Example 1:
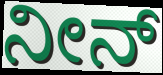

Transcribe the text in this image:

ನೀನ್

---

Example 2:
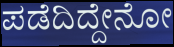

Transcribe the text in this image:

ಪಡೆದಿದ್ದೇನೋ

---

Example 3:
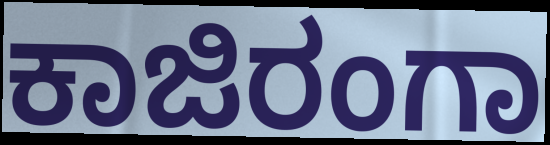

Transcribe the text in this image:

ಕಾಜಿರಂಗಾ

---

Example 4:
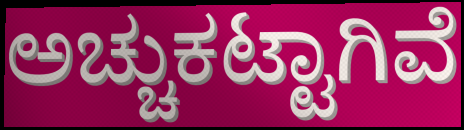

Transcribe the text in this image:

ಅಚ್ಚುಕಟ್ಟಾಗಿವೆ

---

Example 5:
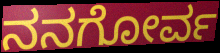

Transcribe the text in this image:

ನನಗೋರ್ವ